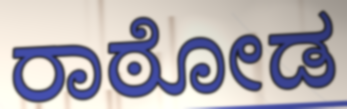
ರಾಠೋಡ